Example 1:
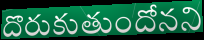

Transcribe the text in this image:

దొరుకుతుందోనని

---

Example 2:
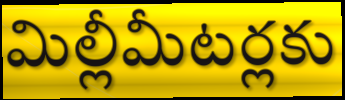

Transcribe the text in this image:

మిల్లీమీటర్లకు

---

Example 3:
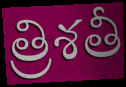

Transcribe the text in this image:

త్రిశతీ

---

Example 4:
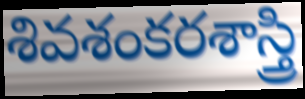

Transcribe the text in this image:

శివశంకరశాస్త్రి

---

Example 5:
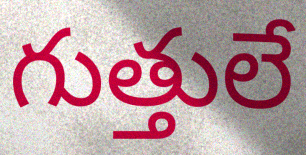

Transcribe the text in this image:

గుత్తులే